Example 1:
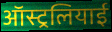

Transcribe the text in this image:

ऑस्ट्रलियाई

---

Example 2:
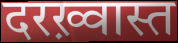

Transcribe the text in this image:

दरख़्वास्त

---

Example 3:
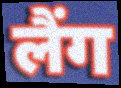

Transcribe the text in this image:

लैंग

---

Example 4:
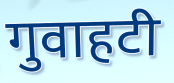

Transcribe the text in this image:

गुवाहटी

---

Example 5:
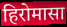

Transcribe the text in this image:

हिरोमासा